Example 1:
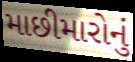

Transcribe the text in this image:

માછીમારોનું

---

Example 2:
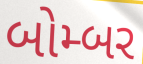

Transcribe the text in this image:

બોમ્બર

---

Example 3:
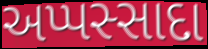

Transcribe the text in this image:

અપ્પસ્સાદા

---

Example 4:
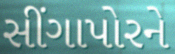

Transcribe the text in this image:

સીંગાપોરને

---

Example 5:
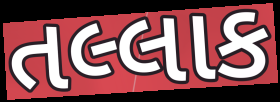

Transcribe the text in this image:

તલ્લાક